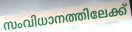
സംവിധാനത്തിലേക്ക്